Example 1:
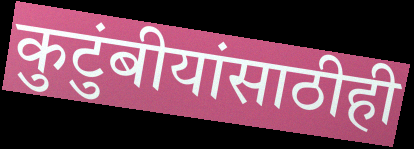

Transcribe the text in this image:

कुटुंबीयांसाठीही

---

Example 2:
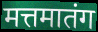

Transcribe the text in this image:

मत्तमातंग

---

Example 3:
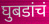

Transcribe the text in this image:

घुबडांचं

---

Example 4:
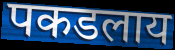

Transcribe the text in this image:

पकडलाय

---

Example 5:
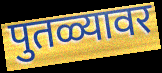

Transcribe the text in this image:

पुतळ्यावर